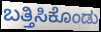
ಬತ್ತಿಸಿಕೊಂಡು